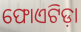
ଫୋଏଟିଡ଼ା